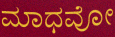
ಮಾಧವೋ